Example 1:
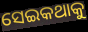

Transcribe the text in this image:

ସେଇକଥାକୁ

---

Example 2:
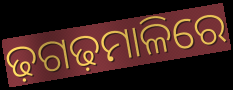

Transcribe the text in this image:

ଢ଼ଗଢ଼ମାଳିରେ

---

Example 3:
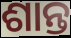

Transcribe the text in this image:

ଶାନ୍ତ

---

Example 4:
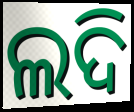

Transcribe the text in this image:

ଲଦି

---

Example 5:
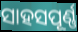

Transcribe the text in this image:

ସାହସପୂର୍ଣ୍ଣ